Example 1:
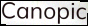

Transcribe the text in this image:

Canopic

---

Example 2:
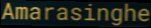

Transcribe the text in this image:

Amarasinghe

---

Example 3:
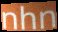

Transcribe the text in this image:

nhn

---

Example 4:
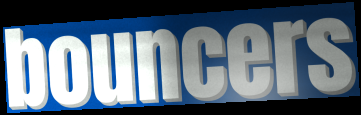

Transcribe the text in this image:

bouncers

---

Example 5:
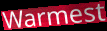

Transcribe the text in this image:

Warmest